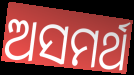
ଅସମର୍ଥ